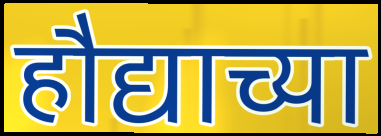
हौद्याच्या